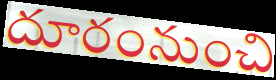
దూరంనుంచి